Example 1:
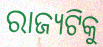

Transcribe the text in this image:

ରାଜ୍ୟଟିକୁ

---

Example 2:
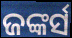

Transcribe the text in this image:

ଜଙ୍କର୍ସ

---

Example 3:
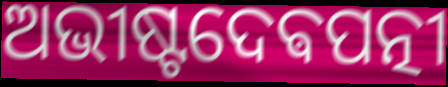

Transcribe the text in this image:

ଅଭୀଷ୍ଟଦେଵପତ୍ନୀ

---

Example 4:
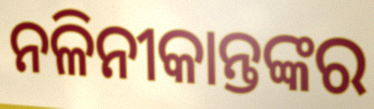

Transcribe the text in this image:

ନଳିନୀକାନ୍ତଙ୍କର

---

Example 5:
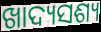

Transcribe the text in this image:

ଖାଦ୍ୟସଶ୍ୟ